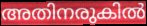
അതിനരുകിൽ